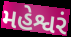
મહેશ્વરં